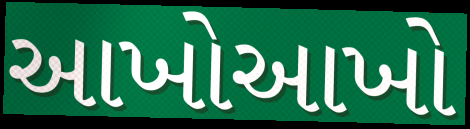
આખોઆખો